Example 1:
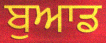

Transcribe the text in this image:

ਬੁਆਡ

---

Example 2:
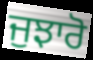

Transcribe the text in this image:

ਜੁਝਾਰੋ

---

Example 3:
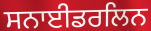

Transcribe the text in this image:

ਸਨਾਈਡਰਲਿਨ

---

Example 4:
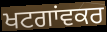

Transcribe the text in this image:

ਖਟਗਾਂਵਕਰ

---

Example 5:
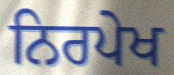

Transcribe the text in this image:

ਨਿਰਪੇਖ